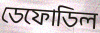
ডেফোডিল